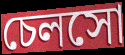
চেলসো